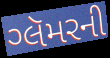
ગ્લૅમરની